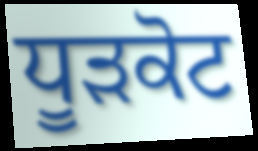
ਧੂੜਕੋਟ